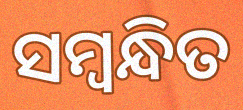
ସମ୍ବନ୍ଧିତ